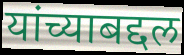
यांच्याबद्दल